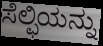
ಸೆಲ್ಫಿಯನ್ನು